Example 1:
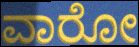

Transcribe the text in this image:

ವಾರೋ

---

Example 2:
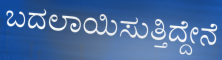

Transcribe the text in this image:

ಬದಲಾಯಿಸುತ್ತಿದ್ದೇನೆ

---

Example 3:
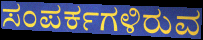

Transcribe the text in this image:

ಸಂಪರ್ಕಗಳಿರುವ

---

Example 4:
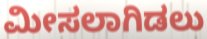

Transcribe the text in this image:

ಮೀಸಲಾಗಿಡಲು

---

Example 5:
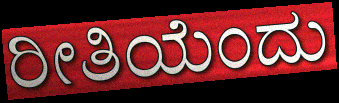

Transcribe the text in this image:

ರೀತಿಯೆಂದು